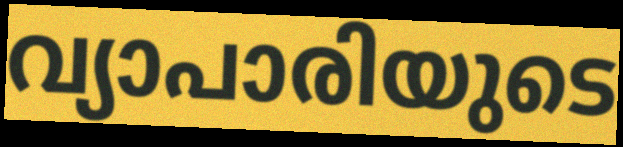
വ്യാപാരിയുടെ